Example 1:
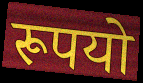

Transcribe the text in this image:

रूपयो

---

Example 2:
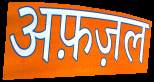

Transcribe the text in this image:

अफ़ज़ल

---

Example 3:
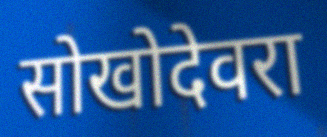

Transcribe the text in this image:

सोखोदेवरा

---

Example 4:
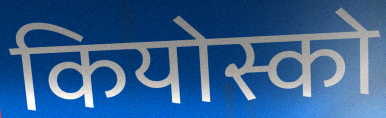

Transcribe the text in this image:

कियोस्को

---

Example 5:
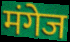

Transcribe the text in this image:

मंगेज